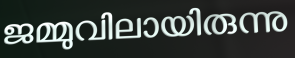
ജമ്മുവിലായിരുന്നു